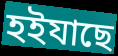
হইযাছে